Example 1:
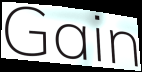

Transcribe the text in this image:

Gain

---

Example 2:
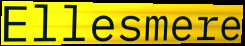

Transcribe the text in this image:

Ellesmere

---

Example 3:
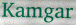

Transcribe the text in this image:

Kamgar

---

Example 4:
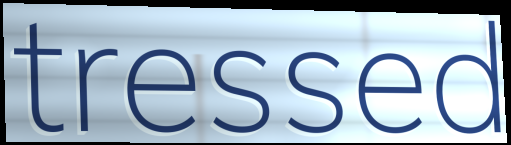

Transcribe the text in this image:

tressed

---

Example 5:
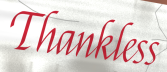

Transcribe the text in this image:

Thankless